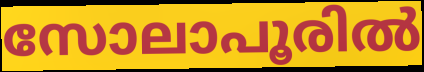
സോലാപൂരിൽ